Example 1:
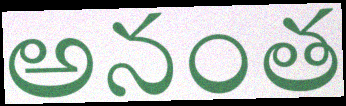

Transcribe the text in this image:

అనంత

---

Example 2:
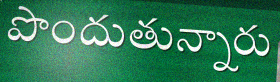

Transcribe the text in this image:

పొందుతున్నారు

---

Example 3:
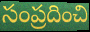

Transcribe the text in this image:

సంప్రదించి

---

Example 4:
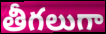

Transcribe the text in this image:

తీగలుగా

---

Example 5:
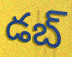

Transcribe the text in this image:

డబ్